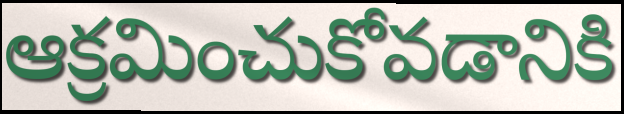
ఆక్రమించుకోవడానికి